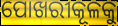
ପୋଖରୀକୂଳକୁ